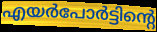
എയർപോർട്ടിന്റെ